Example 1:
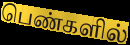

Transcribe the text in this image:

பெண்களில்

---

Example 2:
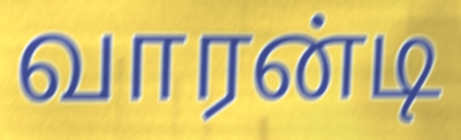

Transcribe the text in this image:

வாரன்டி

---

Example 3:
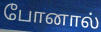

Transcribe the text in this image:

போனால்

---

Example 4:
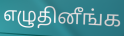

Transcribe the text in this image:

எழுதினீங்க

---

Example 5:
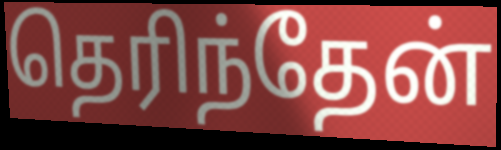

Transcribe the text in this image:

தெரிந்தேன்